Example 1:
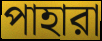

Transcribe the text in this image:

পাহারা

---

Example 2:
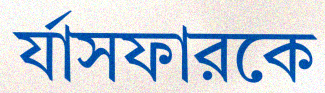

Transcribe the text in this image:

র্যাসফারকে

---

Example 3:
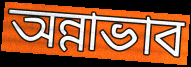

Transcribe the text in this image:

অন্নাভাব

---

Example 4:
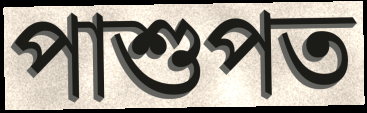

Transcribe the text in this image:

পাশুপত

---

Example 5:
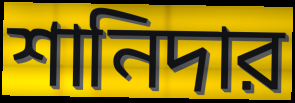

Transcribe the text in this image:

শানিদার